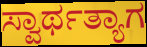
ಸ್ವಾರ್ಥತ್ಯಾಗ